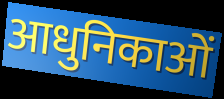
आधुनिकाओं